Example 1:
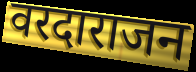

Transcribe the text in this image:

वरदाराजन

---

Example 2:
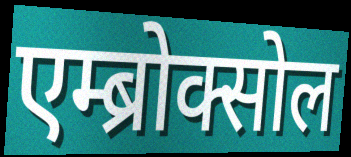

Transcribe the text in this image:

एम्ब्रोक्सोल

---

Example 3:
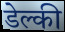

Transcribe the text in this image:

डेल्की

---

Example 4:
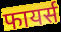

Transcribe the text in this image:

फायर्स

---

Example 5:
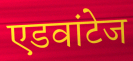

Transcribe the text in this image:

एडवांटेज